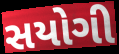
સયોગી